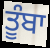
ਤੂੰਬਾ